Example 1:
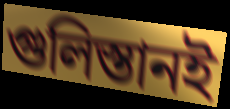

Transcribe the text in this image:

গুলিস্তানই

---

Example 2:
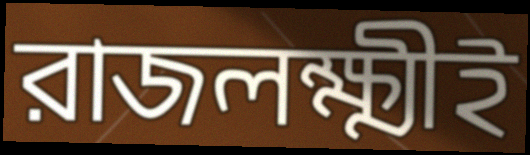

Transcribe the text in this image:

রাজলক্ষ্মীই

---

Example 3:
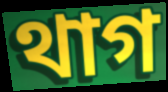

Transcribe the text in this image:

থাগ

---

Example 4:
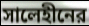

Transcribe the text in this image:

সালেহীনের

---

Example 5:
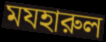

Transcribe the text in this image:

মযহারুল